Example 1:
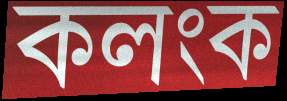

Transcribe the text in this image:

কলংক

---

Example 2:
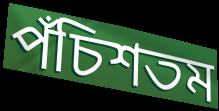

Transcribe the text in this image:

পঁচিশতম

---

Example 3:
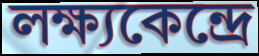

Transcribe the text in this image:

লক্ষ্যকেন্দ্রে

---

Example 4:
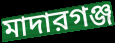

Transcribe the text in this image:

মাদারগঞ্জ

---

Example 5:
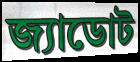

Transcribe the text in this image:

জ্যাডোট